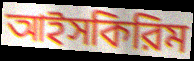
আইসকিরিম